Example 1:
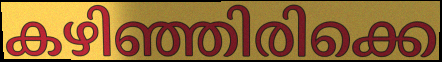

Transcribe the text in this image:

കഴിഞ്ഞിരിക്കെ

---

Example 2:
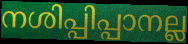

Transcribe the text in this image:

നശിപ്പിപ്പാനല്ല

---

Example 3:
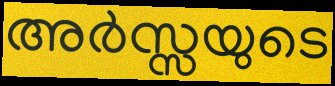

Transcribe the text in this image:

അർസ്സയുടെ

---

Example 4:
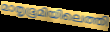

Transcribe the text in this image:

മാതൃഭൂമിയിലെത്തി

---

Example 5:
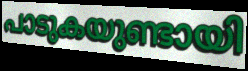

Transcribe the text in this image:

പാടുകയുണ്ടായി